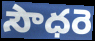
సౌధరె